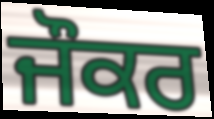
ਜੌਕਰ